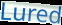
Lured